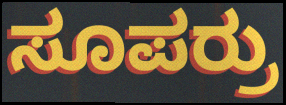
ಸೂಪರ್ರು